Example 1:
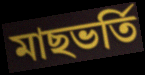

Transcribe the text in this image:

মাছভর্তি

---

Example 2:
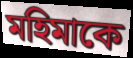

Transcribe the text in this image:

মহিমাকে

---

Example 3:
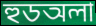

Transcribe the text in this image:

হুডঅলা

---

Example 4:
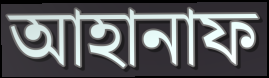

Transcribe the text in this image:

আহানাফ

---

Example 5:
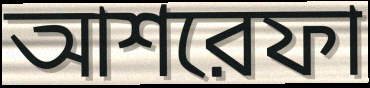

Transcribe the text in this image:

আশরেফা